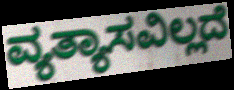
ವ್ಯತ್ಯಾಸವಿಲ್ಲದೆ